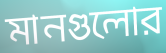
মানগুলোর